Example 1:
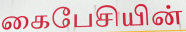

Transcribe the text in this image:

கைபேசியின்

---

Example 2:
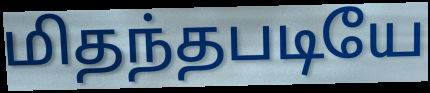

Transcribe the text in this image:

மிதந்தபடியே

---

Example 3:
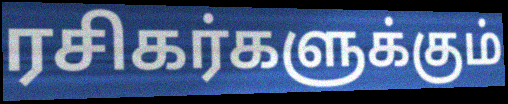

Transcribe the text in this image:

ரசிகர்களுக்கும்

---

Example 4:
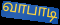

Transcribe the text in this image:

வாபாடி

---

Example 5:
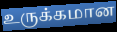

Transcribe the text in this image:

உருக்கமான